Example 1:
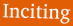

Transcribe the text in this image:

Inciting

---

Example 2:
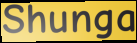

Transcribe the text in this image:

Shunga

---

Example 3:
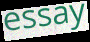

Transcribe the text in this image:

essay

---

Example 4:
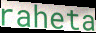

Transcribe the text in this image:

raheta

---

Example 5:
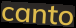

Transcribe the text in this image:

canto